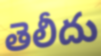
తెలీదు